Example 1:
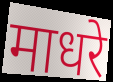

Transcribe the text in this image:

माधरे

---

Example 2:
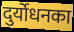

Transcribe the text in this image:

दुर्योधनका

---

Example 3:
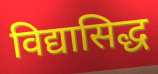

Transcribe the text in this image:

विद्यासिद्ध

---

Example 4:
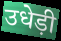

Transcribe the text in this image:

उधेड़ी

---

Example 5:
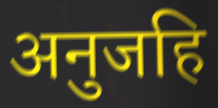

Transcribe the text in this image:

अनुजहि